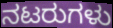
ನಟರುಗಳು